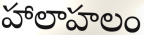
హాలాహలం